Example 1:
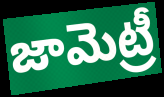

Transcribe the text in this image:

జామెట్రీ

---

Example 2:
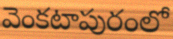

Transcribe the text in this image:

వెంకటాపురంలో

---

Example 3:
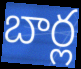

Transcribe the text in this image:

బార్ల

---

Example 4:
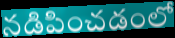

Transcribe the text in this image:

నడిపించడంలో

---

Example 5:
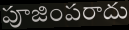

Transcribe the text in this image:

పూజింపరాదు